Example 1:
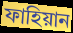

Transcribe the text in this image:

ফাহিয়ান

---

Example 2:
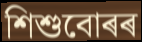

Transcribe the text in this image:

শিশুবোৰৰ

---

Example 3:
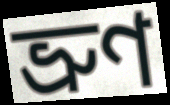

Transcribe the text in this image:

ভ্ৰুণ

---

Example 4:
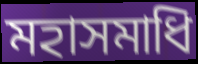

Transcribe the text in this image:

মহাসমাধি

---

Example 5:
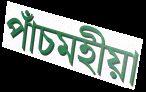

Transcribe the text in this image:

পাঁচমহীয়া